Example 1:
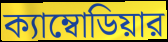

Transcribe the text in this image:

ক্যাম্বোডিয়ার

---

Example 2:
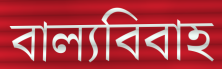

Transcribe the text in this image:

বাল্যবিবাহ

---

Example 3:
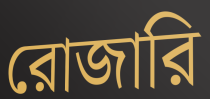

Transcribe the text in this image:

রোজারি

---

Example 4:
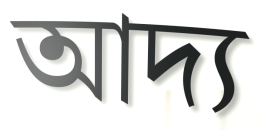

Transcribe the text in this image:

আদ্য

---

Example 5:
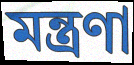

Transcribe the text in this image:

মন্ত্রণা